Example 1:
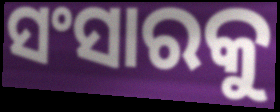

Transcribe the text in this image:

ସଂସାରକୁ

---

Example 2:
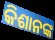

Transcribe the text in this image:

କିଶାନଙ୍କ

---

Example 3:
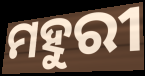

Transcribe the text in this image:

ମହୁରୀ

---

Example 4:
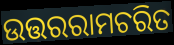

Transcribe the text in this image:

ଉତ୍ତରରାମଚରିତ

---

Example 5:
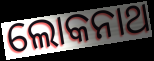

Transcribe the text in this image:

ଲୋକନାଥ